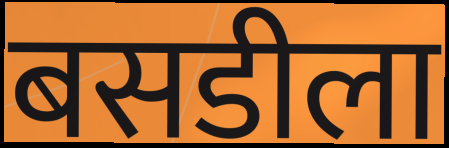
बसडीला